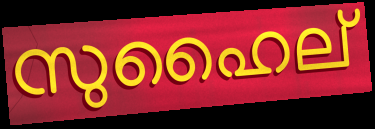
സുഹൈല്